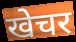
खेचर